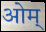
ओम्